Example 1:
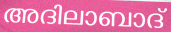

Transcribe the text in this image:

അദിലാബാദ്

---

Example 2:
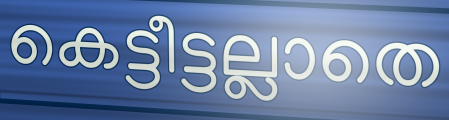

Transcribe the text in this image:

കെട്ടീട്ടല്ലാതെ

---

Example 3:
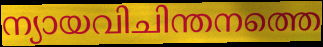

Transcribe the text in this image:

ന്യായവിചിന്തനത്തെ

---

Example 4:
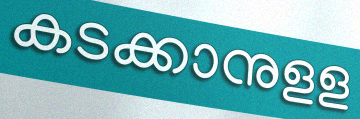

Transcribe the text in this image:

കടക്കാനുളള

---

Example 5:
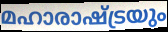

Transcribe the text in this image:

മഹാരാഷ്ട്രയും